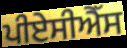
ਪੀਏਸੀਐੱਸ